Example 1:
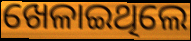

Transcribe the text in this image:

ଖେଳାଇଥିଲେ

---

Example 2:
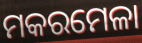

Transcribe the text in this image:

ମକରମେଳା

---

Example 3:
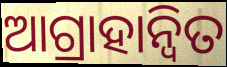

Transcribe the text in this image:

ଆଗ୍ରାହାନ୍ୱିତ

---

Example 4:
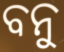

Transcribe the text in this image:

ବନୁ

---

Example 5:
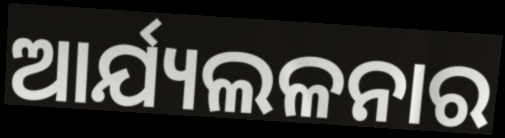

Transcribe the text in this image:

ଆର୍ଯ୍ୟଲଳନାର